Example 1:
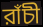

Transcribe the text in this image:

রাঁচী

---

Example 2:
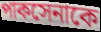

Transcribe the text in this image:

পাকসেনাকে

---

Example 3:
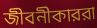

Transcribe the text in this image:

জীবনীকাররা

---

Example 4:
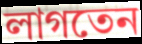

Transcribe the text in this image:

লাগতেন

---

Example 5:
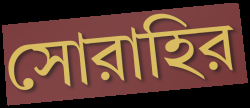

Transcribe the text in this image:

সোরাহির